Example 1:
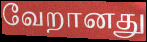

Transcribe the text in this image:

வேறானது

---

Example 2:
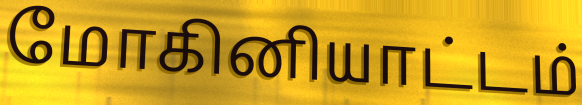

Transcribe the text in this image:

மோகினியாட்டம்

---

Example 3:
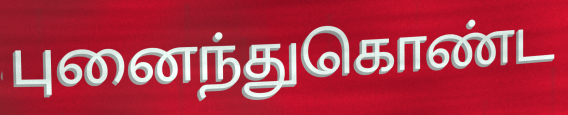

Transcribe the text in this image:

புனைந்துகொண்ட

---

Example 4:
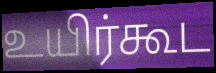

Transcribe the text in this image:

உயிர்கூட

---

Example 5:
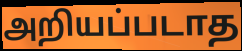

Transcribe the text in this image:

அறியப்படாத